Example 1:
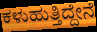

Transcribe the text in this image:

ಕಳುಹುತ್ತಿದ್ದೇನೆ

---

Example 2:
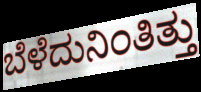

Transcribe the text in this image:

ಬೆಳೆದುನಿಂತಿತ್ತು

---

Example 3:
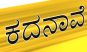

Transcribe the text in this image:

ಕದನಾವೆ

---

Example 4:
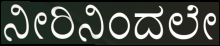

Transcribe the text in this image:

ನೀರಿನಿಂದಲೇ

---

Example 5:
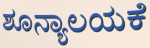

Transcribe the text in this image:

ಶೂನ್ಯಾಲಯಕೆ